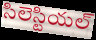
సిలెస్టియల్